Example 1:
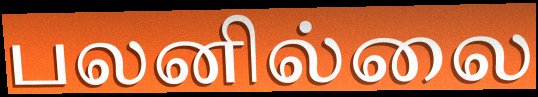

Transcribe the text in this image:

பலனில்லை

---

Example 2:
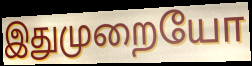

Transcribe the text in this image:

இதுமுறையோ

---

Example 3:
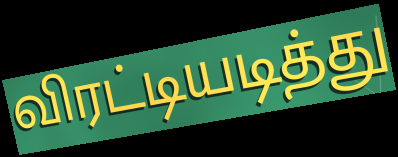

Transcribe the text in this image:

விரட்டியடித்து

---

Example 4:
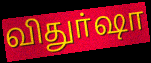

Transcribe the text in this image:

விதுர்ஷா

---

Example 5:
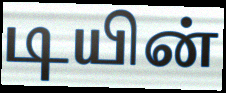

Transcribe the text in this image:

டியின்